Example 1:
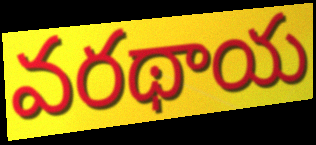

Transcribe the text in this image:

వరథాయ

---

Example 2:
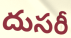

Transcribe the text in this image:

దుసరీ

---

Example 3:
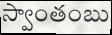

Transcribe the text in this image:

స్వాంతంబు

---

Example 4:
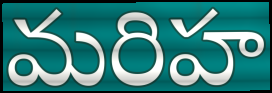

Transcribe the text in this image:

మరిహ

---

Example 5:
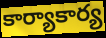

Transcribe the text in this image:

కార్యాకార్య